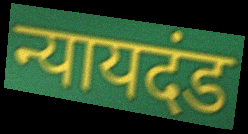
न्यायदंड